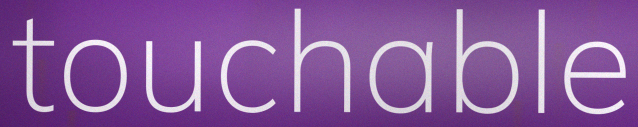
touchable